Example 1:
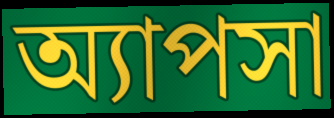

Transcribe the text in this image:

অ্যাপসা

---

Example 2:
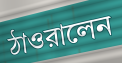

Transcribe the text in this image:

ঠাওরালেন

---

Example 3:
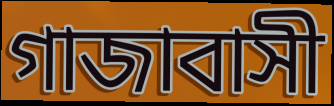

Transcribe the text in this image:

গাজাবাসী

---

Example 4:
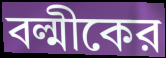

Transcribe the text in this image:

বল্মীকের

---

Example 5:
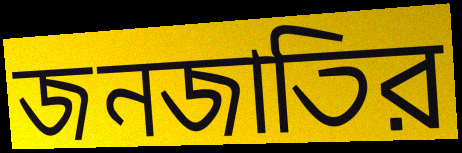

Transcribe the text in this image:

জনজাতির